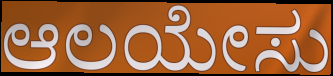
ಆಲಯೇಸು